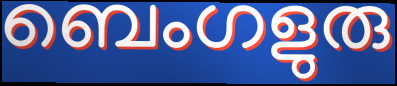
ബെംഗളുരു